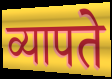
व्यापते